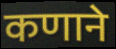
कणाने